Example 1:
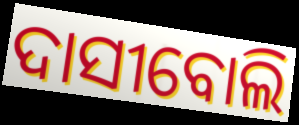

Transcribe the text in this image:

ଦାସୀବୋଲି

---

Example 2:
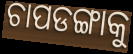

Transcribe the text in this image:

ଚାପଡଙ୍ଗାକୁ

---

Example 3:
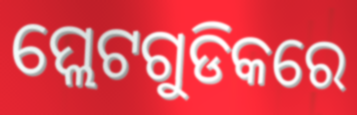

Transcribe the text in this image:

ପ୍ଲେଟଗୁଡିକରେ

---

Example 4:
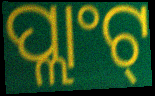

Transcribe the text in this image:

ପ୍ଲାଂଟ୍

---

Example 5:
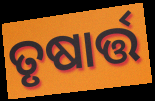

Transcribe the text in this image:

ତୃଷାର୍ତ୍ତ